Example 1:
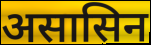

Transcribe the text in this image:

असासिन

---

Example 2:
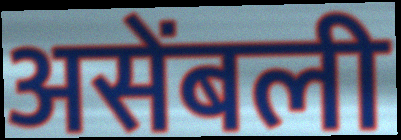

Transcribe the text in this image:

असेंबली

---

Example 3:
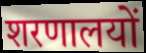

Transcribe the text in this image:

शरणालयों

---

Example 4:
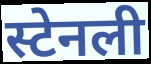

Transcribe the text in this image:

स्टेनली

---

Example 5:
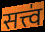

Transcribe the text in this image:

सत्त्व॑